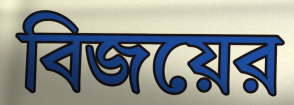
বিজয়ের